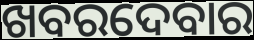
ଖବରଦେବାର